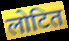
लोटित